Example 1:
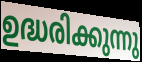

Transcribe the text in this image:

ഉദ്ധരിക്കുന്നു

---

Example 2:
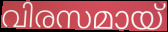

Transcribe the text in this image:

വിരസമായ്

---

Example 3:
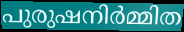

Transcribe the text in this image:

പുരുഷനിർമ്മിത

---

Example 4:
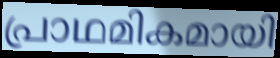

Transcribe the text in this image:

പ്രാഥമികമായി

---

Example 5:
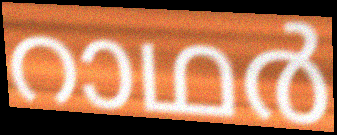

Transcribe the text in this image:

റാഥർ